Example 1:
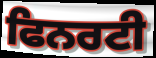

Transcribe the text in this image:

ਫਿਨਰਟੀ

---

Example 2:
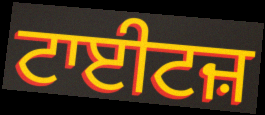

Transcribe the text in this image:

ਟਾਈਟਜ਼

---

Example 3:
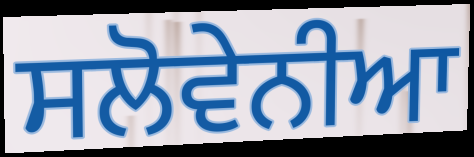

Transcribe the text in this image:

ਸਲੋਵੇਨੀਆ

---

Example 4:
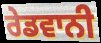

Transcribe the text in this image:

ਰੇਡਵਾਨੀ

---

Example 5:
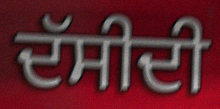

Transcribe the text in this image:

ਦੱਸੀਦੀ